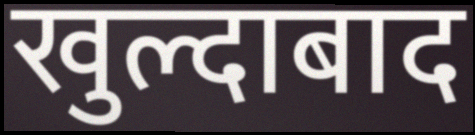
खुल्दाबाद